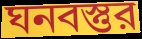
ঘনবস্তুর